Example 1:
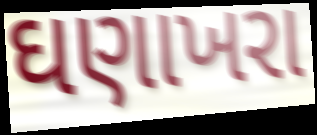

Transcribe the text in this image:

ઘણાખરા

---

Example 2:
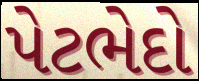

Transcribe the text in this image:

પેટભેદો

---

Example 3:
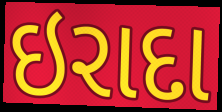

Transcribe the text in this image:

ઇરાદા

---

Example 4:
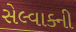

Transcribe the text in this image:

સેલ્વાક્ની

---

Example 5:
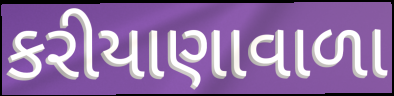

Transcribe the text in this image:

કરીયાણાવાળા